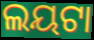
ଲୟଟା